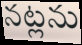
నట్లను